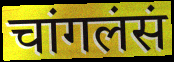
चांगलंसं